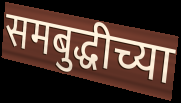
समबुद्धीच्या